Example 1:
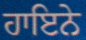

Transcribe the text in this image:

ਹਾਇਨੇ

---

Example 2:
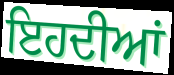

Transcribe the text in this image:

ਇਹਦੀਆਂ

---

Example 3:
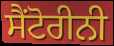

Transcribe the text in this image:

ਸੈਂਟੋਰੀਨੀ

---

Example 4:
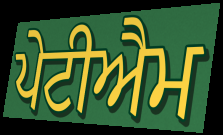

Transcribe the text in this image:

ਪੇਟੀਐਮ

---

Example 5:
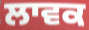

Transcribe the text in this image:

ਲਾਵਕ